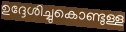
ഉദ്ദേശിച്ചുകൊണ്ടുള്ള